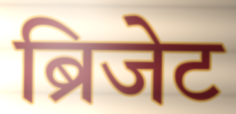
ब्रिजेट